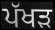
ਪੱਖੜ